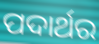
ପଦାର୍ଥର